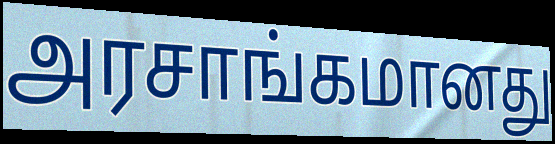
அரசாங்கமானது